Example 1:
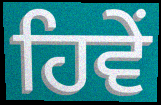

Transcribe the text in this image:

ਹਿਵੇਂ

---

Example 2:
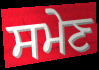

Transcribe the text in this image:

ਸਮੇਣ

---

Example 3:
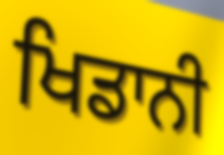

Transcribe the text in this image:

ਖਿਡਾਨੀ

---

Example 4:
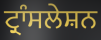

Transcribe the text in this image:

ਟ੍ਰਾੰਸਲੇਸ਼ਨ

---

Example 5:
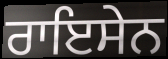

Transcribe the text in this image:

ਰਾਇਸੇਨ